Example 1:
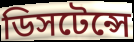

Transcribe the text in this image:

ডিসটেন্সে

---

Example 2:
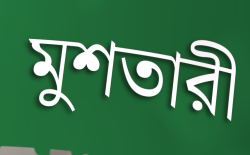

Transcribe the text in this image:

মুশতারী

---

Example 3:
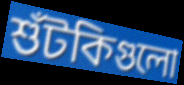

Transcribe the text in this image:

শুঁটকিগুলো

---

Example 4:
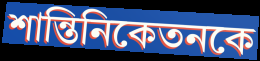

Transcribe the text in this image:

শান্তিনিকেতনকে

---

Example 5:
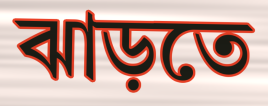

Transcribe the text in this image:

ঝাড়তে